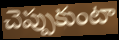
చెప్పుకుంటా